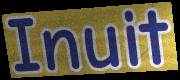
Inuit